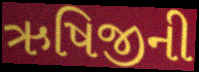
ઋષિજીની